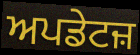
ਅਪਡੇਟਜ਼